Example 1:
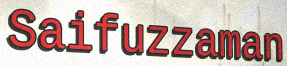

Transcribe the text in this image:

Saifuzzaman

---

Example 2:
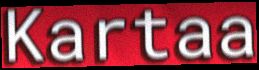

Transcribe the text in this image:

Kartaa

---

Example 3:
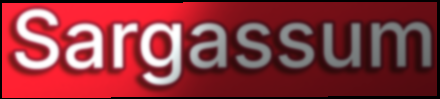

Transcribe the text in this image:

Sargassum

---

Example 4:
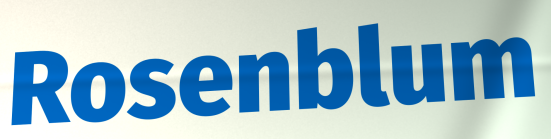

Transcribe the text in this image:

Rosenblum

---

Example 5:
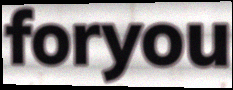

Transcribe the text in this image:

foryou